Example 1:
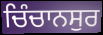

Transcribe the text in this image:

ਚਿੰਚਾਨਸੁਰ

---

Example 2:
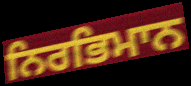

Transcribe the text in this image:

ਨਿਰਭਿਮਾਨ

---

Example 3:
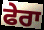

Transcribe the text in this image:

ਫੇਰਾ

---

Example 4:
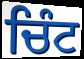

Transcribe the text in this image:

ਚਿੰਟ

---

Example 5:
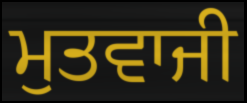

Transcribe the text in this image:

ਮੁਤਵਾਜੀ